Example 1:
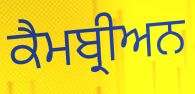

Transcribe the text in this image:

ਕੈਮਬ੍ਰੀਅਨ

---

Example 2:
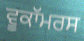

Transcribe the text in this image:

ਵੂਕਾੱਮਰਸ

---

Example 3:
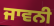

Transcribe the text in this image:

ਜਾਵਨੀ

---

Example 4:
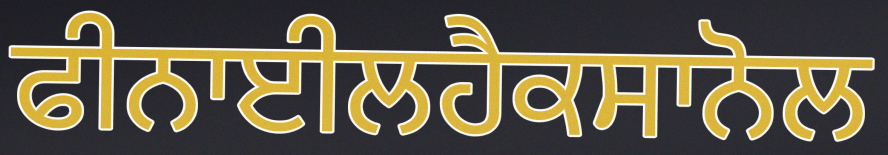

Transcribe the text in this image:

ਫੀਨਾਈਲਹੈਕਸਾਨੋਲ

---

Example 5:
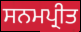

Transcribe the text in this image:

ਸਨਮਪ੍ਰੀਤ